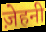
ज़ेहनी